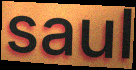
saul